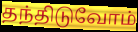
தந்திடுவோம்